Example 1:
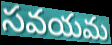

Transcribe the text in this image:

సవయమ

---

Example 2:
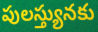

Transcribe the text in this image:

పులస్త్యునకు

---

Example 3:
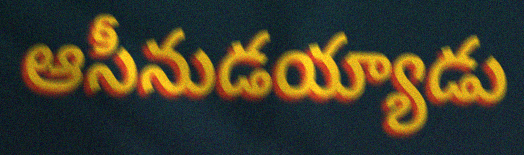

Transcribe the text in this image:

ఆసీనుడయ్యాడు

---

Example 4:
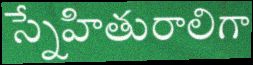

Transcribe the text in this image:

స్నేహితురాలిగా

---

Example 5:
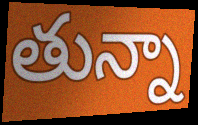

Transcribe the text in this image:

తున్నా